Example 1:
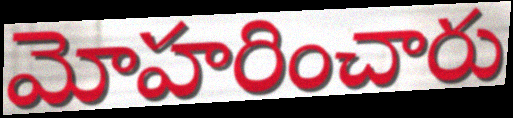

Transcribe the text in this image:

మోహరించారు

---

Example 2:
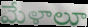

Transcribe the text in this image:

మేళాలూ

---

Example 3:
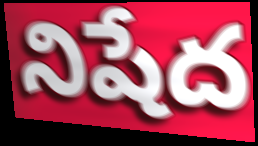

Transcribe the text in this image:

నిషేద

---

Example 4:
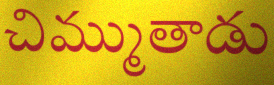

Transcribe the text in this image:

చిమ్ముతాడు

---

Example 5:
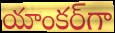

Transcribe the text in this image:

యాంకర్‌గా